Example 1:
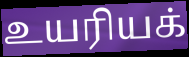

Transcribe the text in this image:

உயரியக்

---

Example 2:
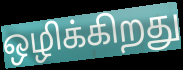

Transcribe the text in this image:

ஒழிக்கிறது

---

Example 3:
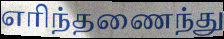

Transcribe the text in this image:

எரிந்தணைந்து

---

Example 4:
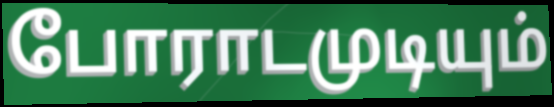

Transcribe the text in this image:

போராடமுடியும்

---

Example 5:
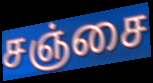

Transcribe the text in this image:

சஞ்சை